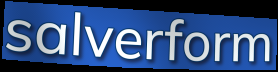
salverform